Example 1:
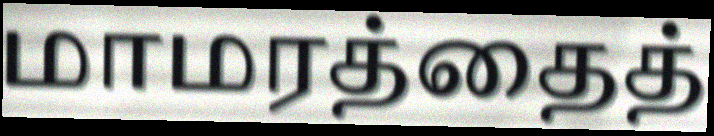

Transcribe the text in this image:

மாமரத்தைத்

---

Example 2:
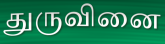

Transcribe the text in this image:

துருவினை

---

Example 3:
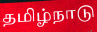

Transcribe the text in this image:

தமிழ்நாடு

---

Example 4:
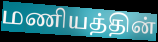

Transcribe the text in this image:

மணியத்தின்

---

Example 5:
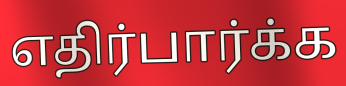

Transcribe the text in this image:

எதிர்பார்க்க